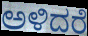
ಅಳಿದರೆ